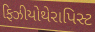
ફિઝીયોથેરાપિસ્ટ